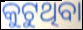
କୁଟୁଥିବା